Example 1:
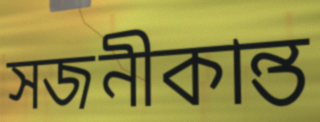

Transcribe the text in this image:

সজনীকান্ত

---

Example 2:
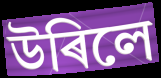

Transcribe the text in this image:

উৰিলে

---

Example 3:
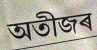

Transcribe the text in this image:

অতীজৰ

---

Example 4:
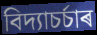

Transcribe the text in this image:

বিদ্যাচৰ্চাৰ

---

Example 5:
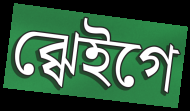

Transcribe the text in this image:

ঝ্ৱেইগে